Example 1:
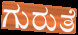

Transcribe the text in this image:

ಗುರುತೆ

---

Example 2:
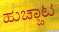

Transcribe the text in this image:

ಹುಚ್ಚಾಟ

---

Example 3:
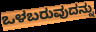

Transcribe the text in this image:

ಒಳಬರುವುದನ್ನು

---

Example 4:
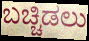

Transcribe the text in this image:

ಬಚ್ಚಿಡಲು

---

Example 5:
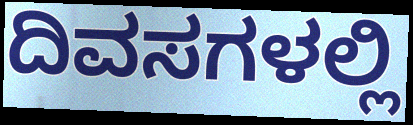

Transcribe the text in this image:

ದಿವಸಗಳಲ್ಲಿ